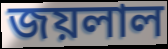
জয়লাল